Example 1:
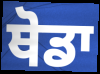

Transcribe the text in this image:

ਥੋਡਾ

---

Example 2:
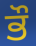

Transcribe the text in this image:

ਭੌ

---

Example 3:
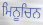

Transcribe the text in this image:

ਮਿਨੂਚਿਨ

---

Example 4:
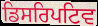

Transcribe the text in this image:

ਡਿਸਰਿਪਟਿਵ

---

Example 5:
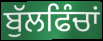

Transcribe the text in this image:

ਬੁੱਲਫਿੰਚਾਂ